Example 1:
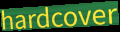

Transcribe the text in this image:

hardcover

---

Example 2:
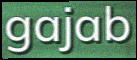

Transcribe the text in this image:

gajab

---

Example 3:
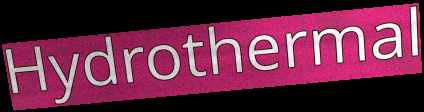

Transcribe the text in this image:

Hydrothermal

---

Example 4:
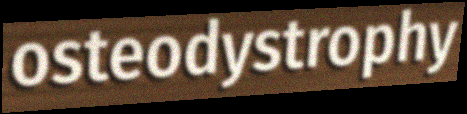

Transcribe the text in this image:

osteodystrophy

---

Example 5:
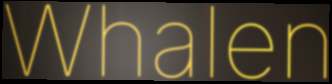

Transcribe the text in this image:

Whalen